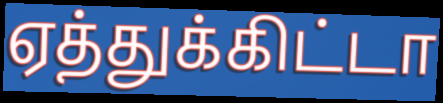
ஏத்துக்கிட்டா